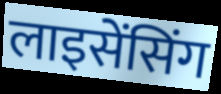
लाइसेंसिंग